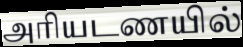
அரியடணயில்